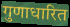
गुणाधारित